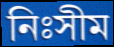
নিঃসীম